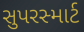
સુપરસ્માર્ટ